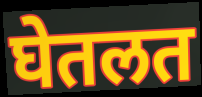
घेतलत